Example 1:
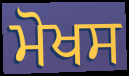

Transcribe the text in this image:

ਮੋਖਸ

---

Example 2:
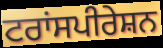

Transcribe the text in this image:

ਟਰਾਂਸਪੀਰੇਸ਼ਨ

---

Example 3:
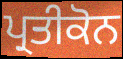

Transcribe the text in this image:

ਪ੍ਰਤੀਕੋਨ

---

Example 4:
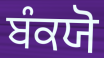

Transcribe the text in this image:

ਬੰਕਯੋ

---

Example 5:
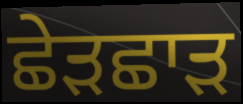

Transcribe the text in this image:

ਛੇੜਛਾੜ